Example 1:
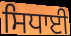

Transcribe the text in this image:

ਸਿਧਾਈ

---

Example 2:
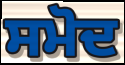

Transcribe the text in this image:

ਸਮੋਦ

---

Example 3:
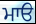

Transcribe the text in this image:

ਮਾੳ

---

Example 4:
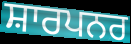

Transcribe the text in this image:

ਸ਼ਾਰਪਨਰ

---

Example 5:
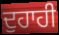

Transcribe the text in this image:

ਦੁਹਾਹੀ